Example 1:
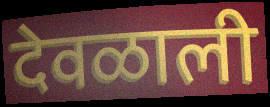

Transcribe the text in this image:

देवळाली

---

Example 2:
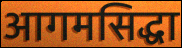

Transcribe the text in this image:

आगमसिद्धा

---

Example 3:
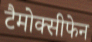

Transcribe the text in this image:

टैमोक्सीफेन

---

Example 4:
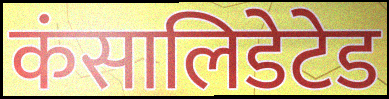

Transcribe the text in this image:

कंसालिडेटेड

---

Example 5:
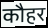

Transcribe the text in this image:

कौहर